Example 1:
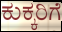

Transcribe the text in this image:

ಕುಕ್ಕರಿಗೆ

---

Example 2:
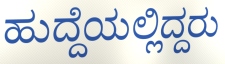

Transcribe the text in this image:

ಹುದ್ದೆಯಲ್ಲಿದ್ದರು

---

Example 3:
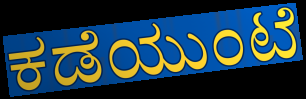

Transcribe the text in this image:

ಕಡೆಯುಂಟೆ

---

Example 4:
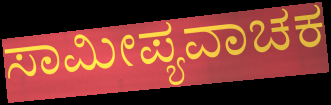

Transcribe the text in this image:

ಸಾಮೀಪ್ಯವಾಚಕ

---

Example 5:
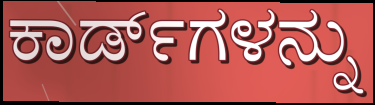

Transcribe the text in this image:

ಕಾರ್ಡ್‌ಗಳನ್ನು